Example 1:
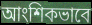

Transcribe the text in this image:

আংশিকভাবে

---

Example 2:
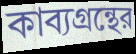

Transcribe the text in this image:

কাব্যগ্রন্থের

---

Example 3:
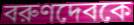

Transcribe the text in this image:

বরুণদেবকে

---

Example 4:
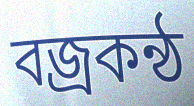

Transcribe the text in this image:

বজ্রকন্ঠ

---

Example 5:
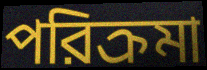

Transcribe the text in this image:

পরিক্রমা